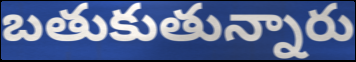
బతుకుతున్నారు